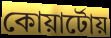
কোয়ার্টোয়